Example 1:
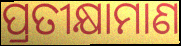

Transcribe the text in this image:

ପ୍ରତୀକ୍ଷାମାଣ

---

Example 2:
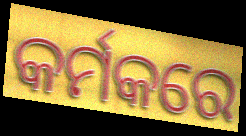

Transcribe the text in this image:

କର୍ମକରେ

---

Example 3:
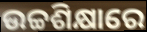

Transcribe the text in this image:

ଉଚ୍ଚଶିକ୍ଷାରେ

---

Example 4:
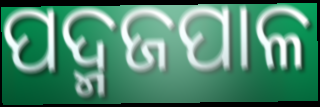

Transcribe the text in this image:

ପଦ୍ମଜପାଳ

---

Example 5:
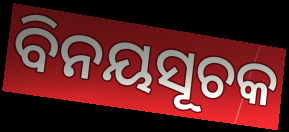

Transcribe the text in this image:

ବିନୟସୂଚକ